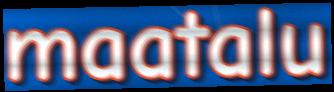
maatalu